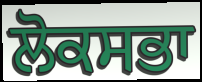
ਲੋਕਸਭਾ